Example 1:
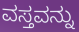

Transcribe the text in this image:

ವಸ್ತವನ್ನು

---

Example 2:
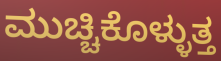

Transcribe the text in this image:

ಮುಚ್ಚಿಕೊಳ್ಳುತ್ತ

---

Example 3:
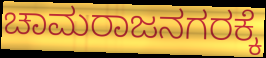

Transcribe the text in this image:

ಚಾಮರಾಜನಗರಕ್ಕೆ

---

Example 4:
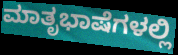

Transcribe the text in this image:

ಮಾತೃಭಾಷೆಗಳಲ್ಲಿ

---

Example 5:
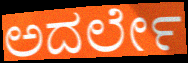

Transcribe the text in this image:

ಅದರ್ಲೇ